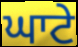
ਘਾਟੇ